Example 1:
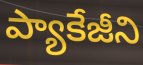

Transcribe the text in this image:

ప్యాకేజీని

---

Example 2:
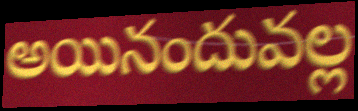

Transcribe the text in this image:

అయినందువల్ల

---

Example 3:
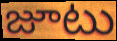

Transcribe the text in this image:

జూటు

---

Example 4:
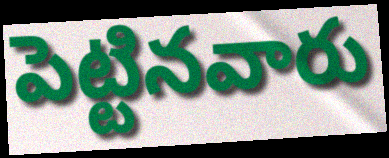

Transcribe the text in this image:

పెట్టినవారు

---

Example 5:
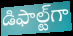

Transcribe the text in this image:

డిఫాల్ట్‌గా